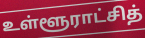
உள்ளூராட்சித்